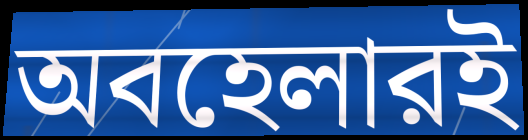
অবহেলারই